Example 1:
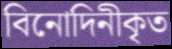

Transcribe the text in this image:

বিনোদিনীকৃত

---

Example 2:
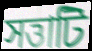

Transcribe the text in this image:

সত্তাটি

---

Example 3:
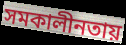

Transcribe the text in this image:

সমকালীনতায়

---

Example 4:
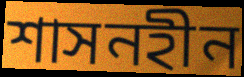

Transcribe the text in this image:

শাসনহীন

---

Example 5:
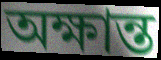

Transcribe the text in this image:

অক্ষান্ত